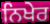
ਨਿਖੇਰ